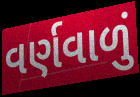
વર્ણવાળું